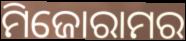
ମିଜୋରାମର